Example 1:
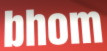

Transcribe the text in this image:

bhom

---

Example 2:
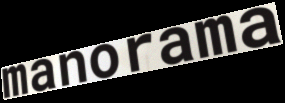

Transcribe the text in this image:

manorama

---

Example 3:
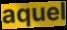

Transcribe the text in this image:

aquel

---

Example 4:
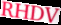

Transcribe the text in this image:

RHDV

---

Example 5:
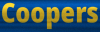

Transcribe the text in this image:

Coopers